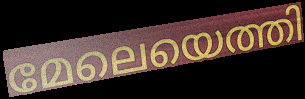
മേലെയെത്തി